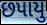
છપાયુ